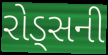
રોડ્સની